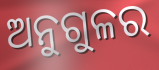
ଅନୁଗୁଳର